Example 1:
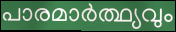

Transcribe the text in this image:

പാരമാർത്ഥ്യവും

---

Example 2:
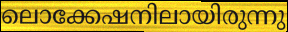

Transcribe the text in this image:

ലൊക്കേഷനിലായിരുന്നു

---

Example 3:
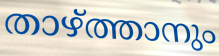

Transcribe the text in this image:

താഴ്ത്താനും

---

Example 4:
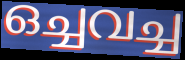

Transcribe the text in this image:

ഒച്ചവച്ച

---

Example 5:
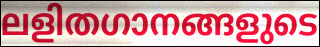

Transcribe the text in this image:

ലളിതഗാനങ്ങളുടെ